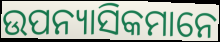
ଉପନ୍ୟାସିକମାନେ